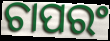
ଚାପରଂ